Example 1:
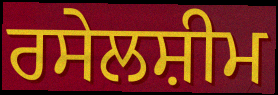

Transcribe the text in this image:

ਰਸੇਲਸ਼ੀਮ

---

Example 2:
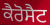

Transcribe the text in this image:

ਕੈਰੋਸੈਟ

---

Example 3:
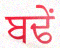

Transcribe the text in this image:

ਬਢੇਂ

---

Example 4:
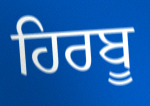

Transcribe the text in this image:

ਹਿਰਬੂ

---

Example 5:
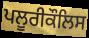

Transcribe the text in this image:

ਪਲੂਰੀਕੌਲਿਸ